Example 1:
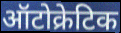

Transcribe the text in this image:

ऑटोक्रेटिक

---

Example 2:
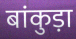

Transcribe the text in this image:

बांकुड़ा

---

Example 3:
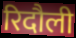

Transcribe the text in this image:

रिदौली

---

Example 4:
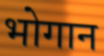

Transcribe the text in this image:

भोगान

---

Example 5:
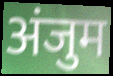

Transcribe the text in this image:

अंजुम